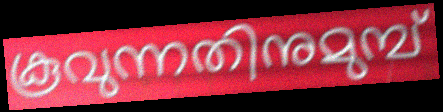
കൂവുന്നതിനുമുമ്പ്